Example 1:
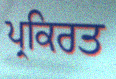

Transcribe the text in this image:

ਪ੍ਰਕਿਰਤ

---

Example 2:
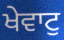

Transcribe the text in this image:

ਖੇਵਾਟੁ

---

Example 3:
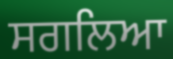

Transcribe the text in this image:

ਸਗਲਿਆ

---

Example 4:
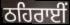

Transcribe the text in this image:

ਠਹਿਰਾਈਂ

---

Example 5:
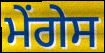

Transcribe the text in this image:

ਮੇਂਗੇਸ